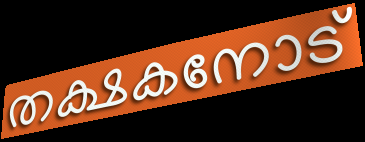
തക്ഷകനോട്